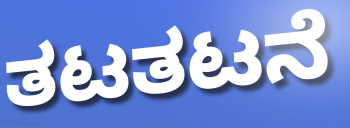
ತಟತಟನೆ